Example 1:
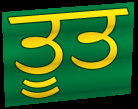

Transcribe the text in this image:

ਤੂਤ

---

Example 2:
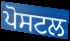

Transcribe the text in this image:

ਪੋਸਟਲ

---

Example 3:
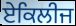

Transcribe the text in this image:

ਏਕਿਲੀਜ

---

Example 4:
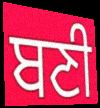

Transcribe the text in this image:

ਬਣੀ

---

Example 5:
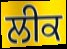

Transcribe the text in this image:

ਲੀਕ